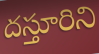
దస్తూరిని